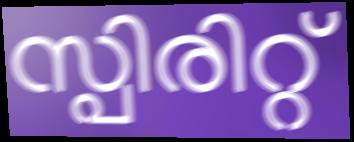
സ്പിരിറ്റ്